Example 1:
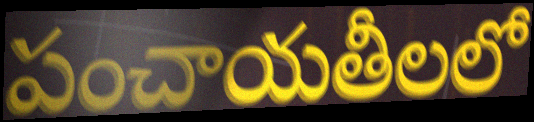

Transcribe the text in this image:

పంచాయతీలలో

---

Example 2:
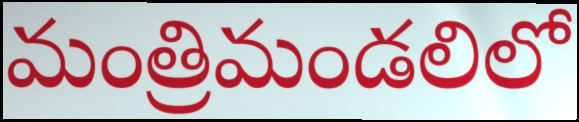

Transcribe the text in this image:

మంత్రిమండలిలో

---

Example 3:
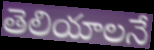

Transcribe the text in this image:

తెలియాలనే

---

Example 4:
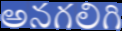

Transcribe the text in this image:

అనగలిగి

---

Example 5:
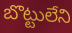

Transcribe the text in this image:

బొట్టులేని